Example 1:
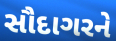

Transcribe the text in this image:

સૌદાગરને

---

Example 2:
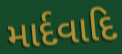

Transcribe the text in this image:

માર્દવાદિ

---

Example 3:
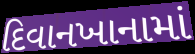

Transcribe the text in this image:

દિવાનખાનામાં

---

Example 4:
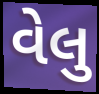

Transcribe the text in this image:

વેલુ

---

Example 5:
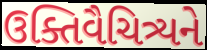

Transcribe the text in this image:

ઉક્તિવૈચિત્ર્યને